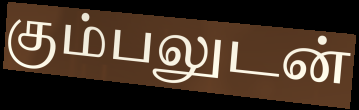
கும்பலுடன்